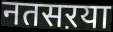
नतसऱया